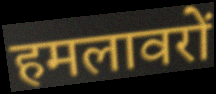
हमलावरों